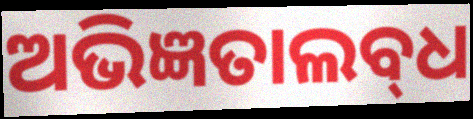
ଅଭିଜ୍ଞତାଲବ୍‌ଧ